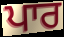
ਪਾਰ